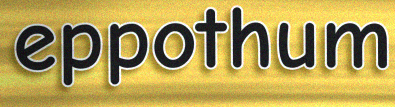
eppothum